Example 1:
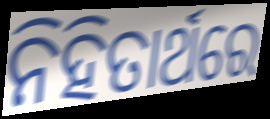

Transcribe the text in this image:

ନିହିତାର୍ଥରେ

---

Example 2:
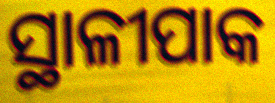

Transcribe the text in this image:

ସ୍ଥାଳୀପାକ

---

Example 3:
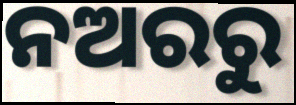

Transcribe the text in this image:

ନଅରରୁ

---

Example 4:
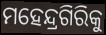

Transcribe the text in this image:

ମହେନ୍ଦ୍ରଗିରିକୁ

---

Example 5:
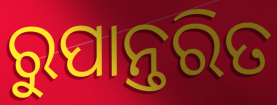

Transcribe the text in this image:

ରୁପାନ୍ତରିତ